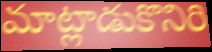
మాట్లాడుకొనిరి